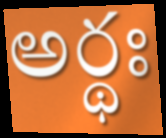
అర్థః